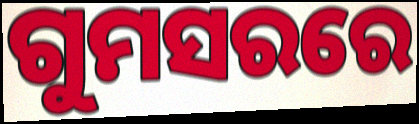
ଗୁମସରରେ